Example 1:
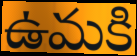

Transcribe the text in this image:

ఉమకి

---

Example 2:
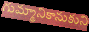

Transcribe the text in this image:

గుమ్మానికానుకుని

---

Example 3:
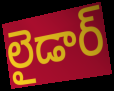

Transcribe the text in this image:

లైడార్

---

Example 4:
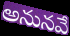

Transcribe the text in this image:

అనునవే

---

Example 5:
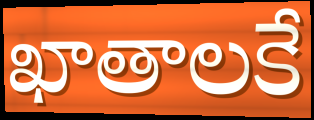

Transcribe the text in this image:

ఖాతాలకే